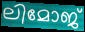
ലിമോജ്